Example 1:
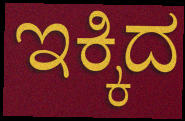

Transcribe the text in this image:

ಇಕ್ಕಿದ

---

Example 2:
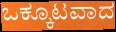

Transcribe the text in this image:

ಒಕ್ಕೂಟವಾದ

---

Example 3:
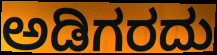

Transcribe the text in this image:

ಅಡಿಗರದು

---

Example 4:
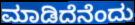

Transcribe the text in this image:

ಮಾಡಿದೆನೆಂದು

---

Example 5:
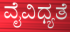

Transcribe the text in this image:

ವೈವಿಧ್ಯತೆ